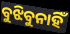
ବୁଝିବୁନାହିଁ